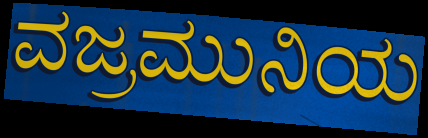
ವಜ್ರಮುನಿಯ